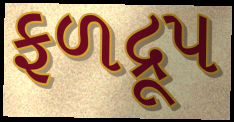
ફળદ્રૂપ